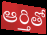
ఆర్తితో